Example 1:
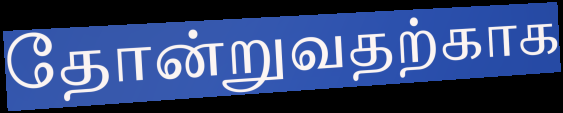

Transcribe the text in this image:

தோன்றுவதற்காக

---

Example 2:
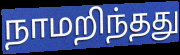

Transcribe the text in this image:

நாமறிந்தது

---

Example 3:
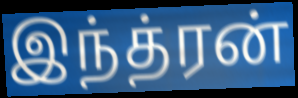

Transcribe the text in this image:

இந்த்ரன்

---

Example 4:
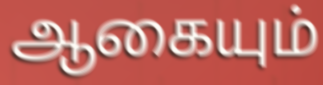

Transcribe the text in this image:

ஆகையும்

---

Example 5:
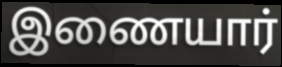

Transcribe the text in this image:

இணையார்